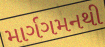
માર્ગગમનથી